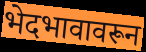
भेदभावावरून